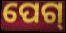
ପେଗ୍